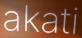
akati